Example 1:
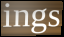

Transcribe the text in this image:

ings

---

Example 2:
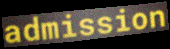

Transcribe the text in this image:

admission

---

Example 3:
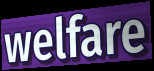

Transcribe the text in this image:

welfare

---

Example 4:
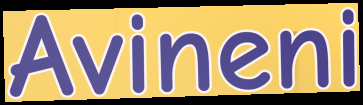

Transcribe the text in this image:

Avineni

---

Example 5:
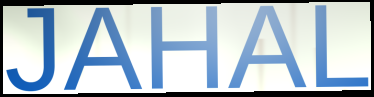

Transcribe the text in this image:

JAHAL